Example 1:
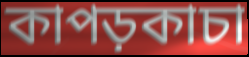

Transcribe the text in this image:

কাপড়কাচা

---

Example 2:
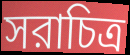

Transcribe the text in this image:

সরাচিত্র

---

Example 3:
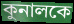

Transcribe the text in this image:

কুনালকে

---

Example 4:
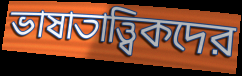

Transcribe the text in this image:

ভাষাতাত্ত্বিকদের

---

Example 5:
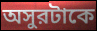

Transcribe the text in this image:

অসুরটাকে